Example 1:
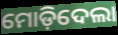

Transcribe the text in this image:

ମୋଡ଼ିଦେଲା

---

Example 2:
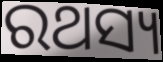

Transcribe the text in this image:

ରଥସ୍ୟ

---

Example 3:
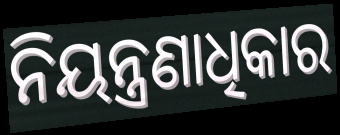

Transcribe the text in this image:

ନିୟନ୍ତ୍ରଣାଧିକାର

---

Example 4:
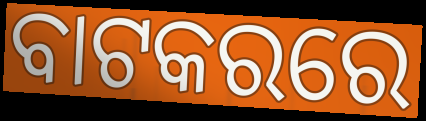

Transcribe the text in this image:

ବାଟକରରେ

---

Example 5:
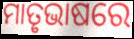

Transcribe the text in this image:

ମାତୃଭାଷରେ